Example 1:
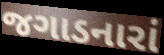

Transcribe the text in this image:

જગાડનારાં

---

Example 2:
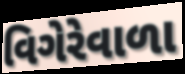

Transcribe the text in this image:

વિગેરેવાળા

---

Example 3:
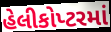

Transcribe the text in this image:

હેલીકોપ્ટરમાં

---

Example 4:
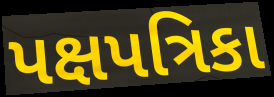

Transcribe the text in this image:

પક્ષપત્રિકા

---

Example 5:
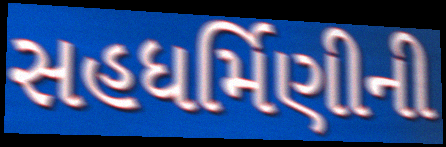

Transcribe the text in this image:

સહધર્મિણીની